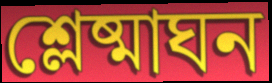
শ্লেষ্মাঘন